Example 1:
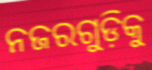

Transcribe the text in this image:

ନଜରଗୁଡ଼ିକୁ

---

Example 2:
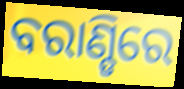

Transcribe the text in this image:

ବରାଣ୍ଡିରେ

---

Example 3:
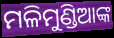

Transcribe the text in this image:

ମଳିମୁଣ୍ଡିଆଙ୍କ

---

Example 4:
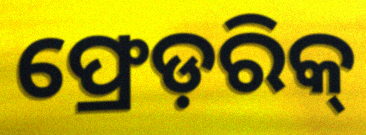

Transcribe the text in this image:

ଫ୍ରେଡ଼ରିକ୍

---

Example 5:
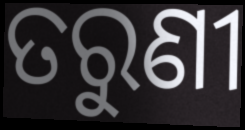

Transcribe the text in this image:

ତରୁଣୀ